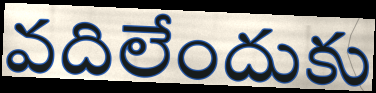
వదిలేందుకు